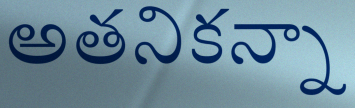
అతనికన్నా